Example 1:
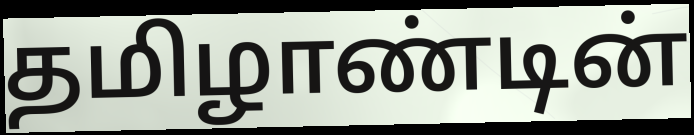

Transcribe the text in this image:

தமிழாண்டின்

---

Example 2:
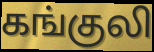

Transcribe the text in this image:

கங்குலி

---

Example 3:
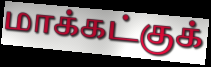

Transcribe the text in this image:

மாக்கட்குக்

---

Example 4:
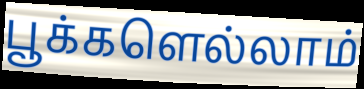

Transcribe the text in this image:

பூக்களெல்லாம்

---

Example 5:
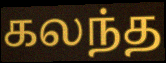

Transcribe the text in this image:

கலந்த